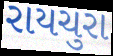
રાયચુરા